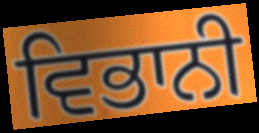
ਵਿਭਾਨੀ